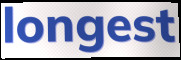
longest